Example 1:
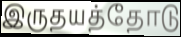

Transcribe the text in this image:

இருதயத்தோடு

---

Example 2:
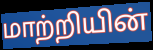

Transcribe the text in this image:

மாற்றியின்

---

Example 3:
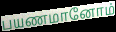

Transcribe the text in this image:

பயணமானோம்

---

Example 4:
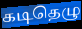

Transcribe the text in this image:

கடிதெழு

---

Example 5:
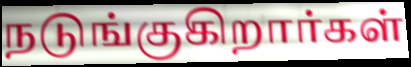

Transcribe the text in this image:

நடுங்குகிறார்கள்